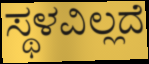
ಸ್ಥಳವಿಲ್ಲದೆ